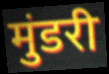
मुंडरी